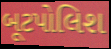
બૂટપોલિશ